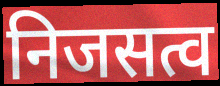
निजसत्व